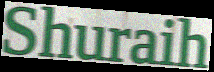
Shuraih